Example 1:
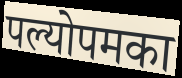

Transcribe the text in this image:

पल्योपमका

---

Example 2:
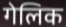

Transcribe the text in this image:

गेलिक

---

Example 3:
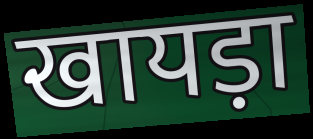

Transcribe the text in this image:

खायड़ा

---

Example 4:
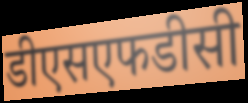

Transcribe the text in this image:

डीएसएफडीसी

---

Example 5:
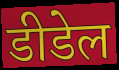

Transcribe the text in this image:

डीडेल